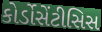
કોર્ડોસેંટીસિસ